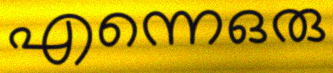
എന്നെഒരു